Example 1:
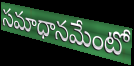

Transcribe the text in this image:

సమాధానమేంటో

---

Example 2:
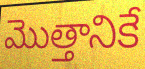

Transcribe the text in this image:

మొత్తానికే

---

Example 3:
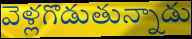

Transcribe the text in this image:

వెళ్లగొడుతున్నాడు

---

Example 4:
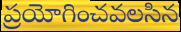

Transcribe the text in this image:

ప్రయోగించవలసిన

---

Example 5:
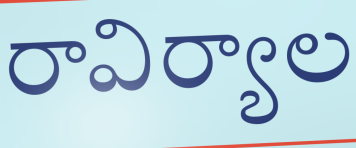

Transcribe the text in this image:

రావిర్యాల